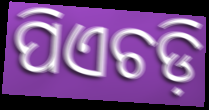
ପିଏଚଡ଼ି